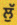
ਲੁੱ